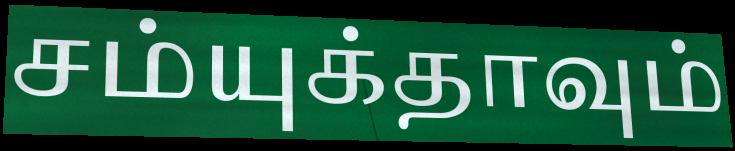
சம்யுக்தாவும்